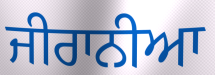
ਜੀਰਾਨੀਆ